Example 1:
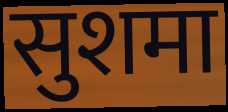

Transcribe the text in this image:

सुशमा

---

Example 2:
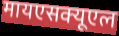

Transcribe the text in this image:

मायएसक्यूएल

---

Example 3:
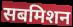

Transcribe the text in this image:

सबमिशन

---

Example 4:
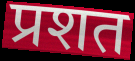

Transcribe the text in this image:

प्रशत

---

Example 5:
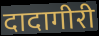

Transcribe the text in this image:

दादागीरी